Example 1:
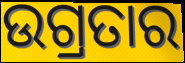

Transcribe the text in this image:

ଉଗ୍ରତାର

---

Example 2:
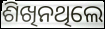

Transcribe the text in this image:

ଶିଖିନଥିଲେ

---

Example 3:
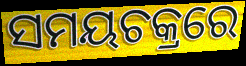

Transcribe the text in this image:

ସମୟଚକ୍ରରେ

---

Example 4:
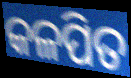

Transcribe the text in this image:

କଳପିତ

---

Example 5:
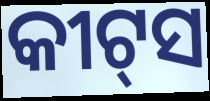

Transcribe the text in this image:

କୀଟ୍‌ସ